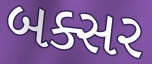
બક્સર